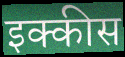
इक्‍कीस